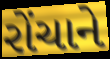
રોંચાને